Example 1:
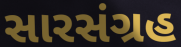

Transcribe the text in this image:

સારસંગ્રહ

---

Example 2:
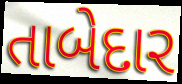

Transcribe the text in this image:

તાબેદાર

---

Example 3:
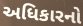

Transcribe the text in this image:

અધિકારનો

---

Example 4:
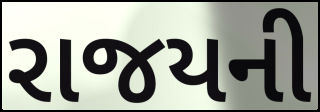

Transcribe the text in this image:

રાજયની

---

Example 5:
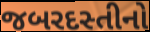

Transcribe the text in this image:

જબરદસ્તીનો